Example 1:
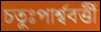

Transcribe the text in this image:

চতুঃপার্শ্ববর্ত্তী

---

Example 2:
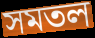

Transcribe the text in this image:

সমতল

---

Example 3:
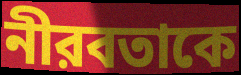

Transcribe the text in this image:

নীরবতাকে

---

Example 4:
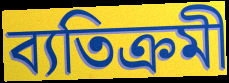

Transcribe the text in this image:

ব্যতিক্রমী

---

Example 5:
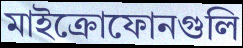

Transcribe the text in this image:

মাইক্রোফোনগুলি